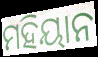
ମହିୟାନ